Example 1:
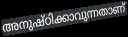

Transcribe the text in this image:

അനുഷ്ഠിക്കാവുന്നതാണ്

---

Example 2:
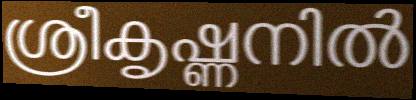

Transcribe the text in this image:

ശ്രീകൃഷ്ണനിൽ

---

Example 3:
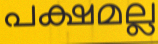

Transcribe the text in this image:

പക്ഷമല്ല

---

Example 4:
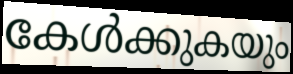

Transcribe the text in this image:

കേൾക്കുകയും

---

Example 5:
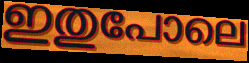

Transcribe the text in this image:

ഇതുപോലെ